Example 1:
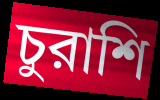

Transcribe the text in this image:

চুরাশি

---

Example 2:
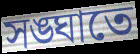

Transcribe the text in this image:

সঙ্ঘাতে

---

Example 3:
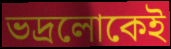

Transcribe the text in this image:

ভদ্রলোকেই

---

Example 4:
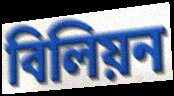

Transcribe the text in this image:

বিলিয়ন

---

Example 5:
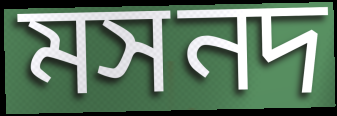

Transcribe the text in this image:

মসনদ